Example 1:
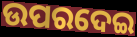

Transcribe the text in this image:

ଉପରଦେଇ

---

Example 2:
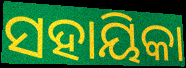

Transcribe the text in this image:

ସହାୟିକା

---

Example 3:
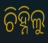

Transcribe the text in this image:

ଚିହ୍ନିଲୁ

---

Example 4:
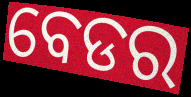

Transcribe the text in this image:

ବେଡର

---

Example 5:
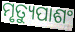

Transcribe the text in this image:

ମୃତ୍ୟୁପାଶଂ